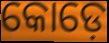
କୋଡ଼େ